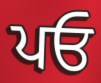
ਪਓ